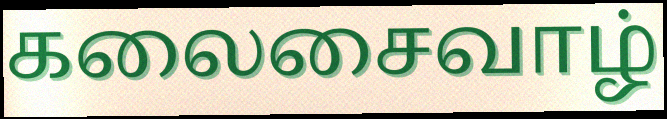
கலைசைவாழ்